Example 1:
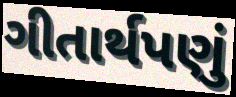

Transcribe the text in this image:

ગીતાર્થપણું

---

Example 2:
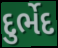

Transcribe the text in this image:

દુર્ભેદ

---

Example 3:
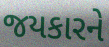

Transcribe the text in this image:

જયકારને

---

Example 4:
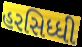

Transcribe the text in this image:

હરસિધ્ધી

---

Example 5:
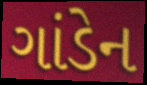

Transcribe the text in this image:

ગાંડેન